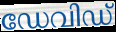
ഡേവിഡ്